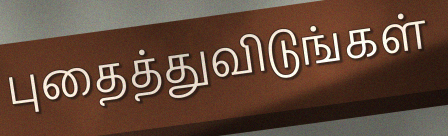
புதைத்துவிடுங்கள்